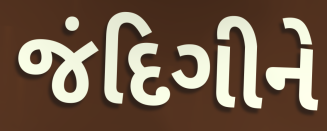
જંદિગીને